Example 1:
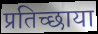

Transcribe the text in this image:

प्रतिच्छाया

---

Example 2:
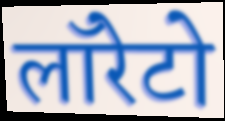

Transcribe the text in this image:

लॉरेटो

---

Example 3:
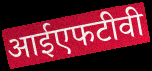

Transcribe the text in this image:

आईएफटीवी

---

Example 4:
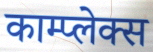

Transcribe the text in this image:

काम्प्लेक्स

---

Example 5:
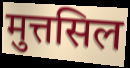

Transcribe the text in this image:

मुत्तसिल